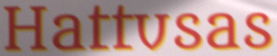
Hattusas